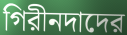
গিরীনদাদের